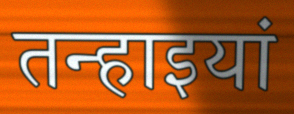
तन्हाइयां